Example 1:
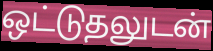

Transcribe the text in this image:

ஒட்டுதலுடன்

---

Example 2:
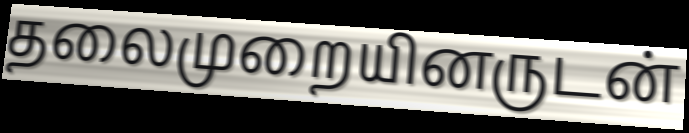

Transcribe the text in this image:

தலைமுறையினருடன்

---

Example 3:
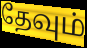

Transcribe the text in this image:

தேவும்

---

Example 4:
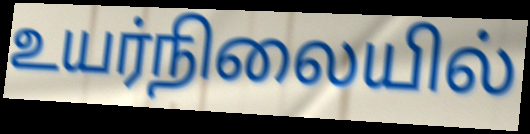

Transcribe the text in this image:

உயர்நிலையில்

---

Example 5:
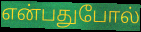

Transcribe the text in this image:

என்பதுபோல்